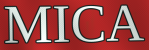
MICA